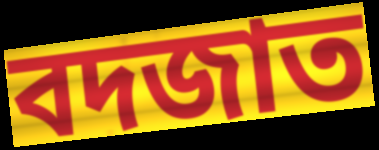
বদজাত